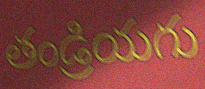
తండ్రియగు